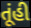
તૂંહી